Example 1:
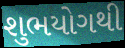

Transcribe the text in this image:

શુભયોગથી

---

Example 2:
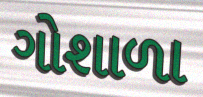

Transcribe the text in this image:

ગોશાળા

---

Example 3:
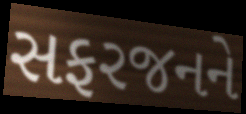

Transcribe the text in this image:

સફરજનને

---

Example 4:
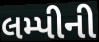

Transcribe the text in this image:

લમ્પીની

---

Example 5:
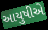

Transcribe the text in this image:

આયુષીએ